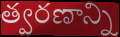
త్వరణాన్ని